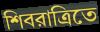
শিবরাত্রিতে